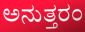
ಅನುತ್ತರಂ